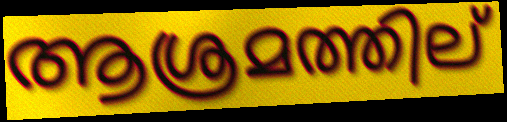
ആശ്രമത്തില്